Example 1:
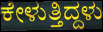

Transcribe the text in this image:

ಕೇಳುತ್ತಿದ್ದಳು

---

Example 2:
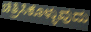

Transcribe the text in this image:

ಚಿತ್ರಿಸಿಕೊಳ್ಳುವುದು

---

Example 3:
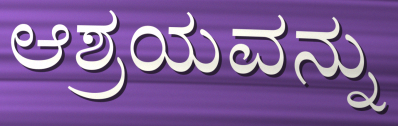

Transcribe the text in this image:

ಆಶ್ರಯವನ್ನು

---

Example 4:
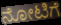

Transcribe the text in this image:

ನೋಟಿಗೆ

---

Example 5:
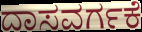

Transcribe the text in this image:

ದಾಸವರ್ಗಕೆ